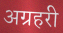
अग्रहरी